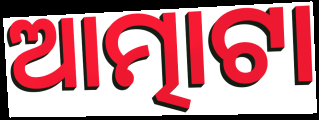
ଆତ୍ମାଟା